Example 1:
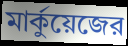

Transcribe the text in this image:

মার্কুয়েজের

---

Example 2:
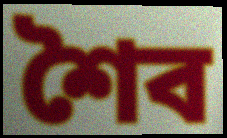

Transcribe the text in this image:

শৈব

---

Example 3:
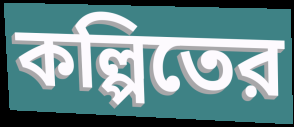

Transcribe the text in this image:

কল্পিতের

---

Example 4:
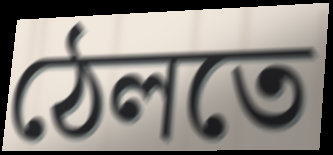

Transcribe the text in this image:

ঠেলতে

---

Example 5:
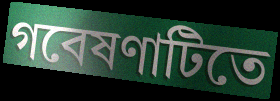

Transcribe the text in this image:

গবেষণাটিতে